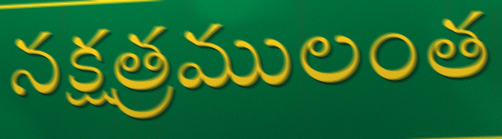
నక్షత్రములంత